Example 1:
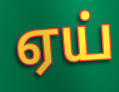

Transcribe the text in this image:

ஏய்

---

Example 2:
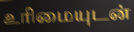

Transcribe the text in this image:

உரிமையுடன்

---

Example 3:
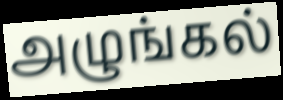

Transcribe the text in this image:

அழுங்கல்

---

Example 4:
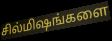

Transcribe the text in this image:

சில்மிஷங்களை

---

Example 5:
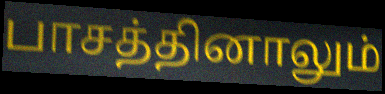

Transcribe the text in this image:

பாசத்தினாலும்